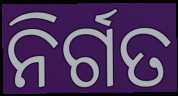
ନିର୍ଗତ